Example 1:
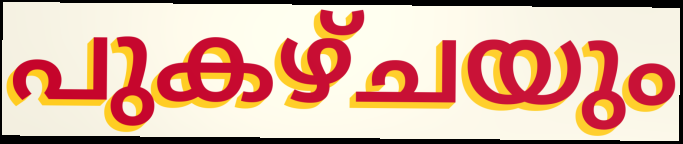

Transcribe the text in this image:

പുകഴ്ചയും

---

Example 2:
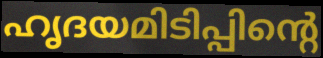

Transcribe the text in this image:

ഹൃദയമിടിപ്പിന്റെ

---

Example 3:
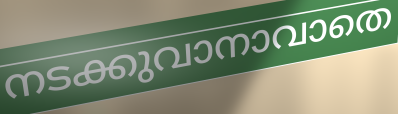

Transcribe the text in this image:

നടക്കുവാനാവാതെ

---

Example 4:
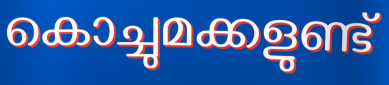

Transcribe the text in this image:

കൊച്ചുമക്കളുണ്ട്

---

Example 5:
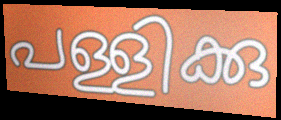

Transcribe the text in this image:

പള്ളിക്കു